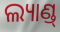
ଲ୍ୟାଣ୍ଡ୍